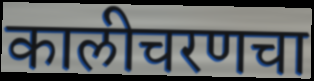
कालीचरणचा